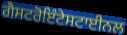
ਗੈਸਟਰੋਇੰਟੇਸਟਾਈਨਲ